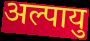
अल्पायु